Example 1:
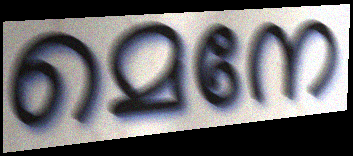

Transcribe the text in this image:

മെനേ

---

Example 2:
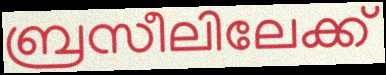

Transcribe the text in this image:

ബ്രസീലിലേക്ക്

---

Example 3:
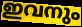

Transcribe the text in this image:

ഇവനും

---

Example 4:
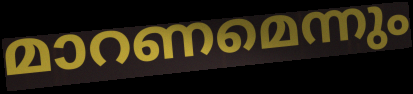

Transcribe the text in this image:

മാറണമെന്നും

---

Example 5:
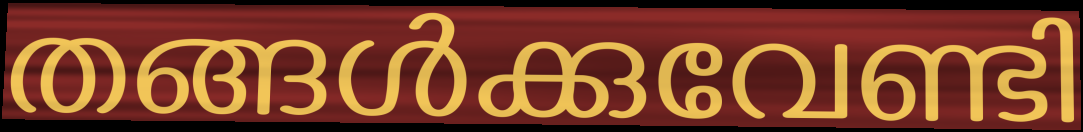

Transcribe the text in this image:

തങ്ങൾക്കുവേണ്ടി